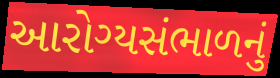
આરોગ્યસંભાળનું